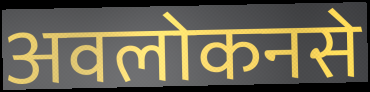
अवलोकनसे